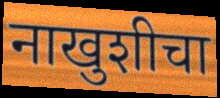
नाखुशीचा